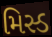
મિસ્ડ